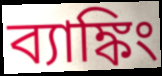
ব্যাঙ্কিং